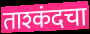
ताश्कंदचा